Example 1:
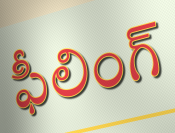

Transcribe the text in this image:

ఫీలింగ్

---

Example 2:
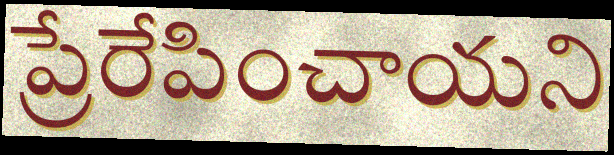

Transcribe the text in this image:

ప్రేరేపించాయని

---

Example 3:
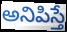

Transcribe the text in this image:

అనిపిస్తే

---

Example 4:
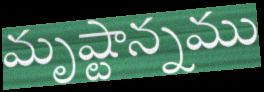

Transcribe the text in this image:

మృష్టాన్నము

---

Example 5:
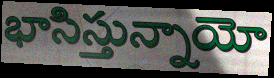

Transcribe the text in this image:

భాసిస్తున్నాయో